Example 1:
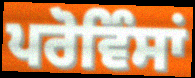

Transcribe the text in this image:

ਪਰੋਵਿੰਸਾਂ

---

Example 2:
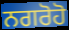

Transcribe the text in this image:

ਨਗਰੋਹੋ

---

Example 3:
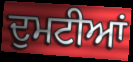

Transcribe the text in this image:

ਦੁਮਟੀਆਂ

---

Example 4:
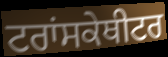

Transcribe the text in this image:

ਟਰਾਂਸਕੇਥੀਟਰ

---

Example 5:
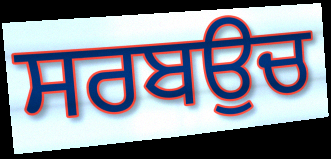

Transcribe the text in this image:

ਸਰਬਉਚ